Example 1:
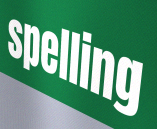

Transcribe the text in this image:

spelling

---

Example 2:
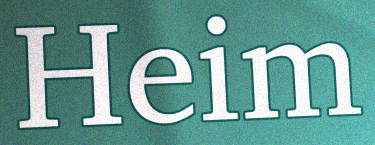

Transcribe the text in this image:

Heim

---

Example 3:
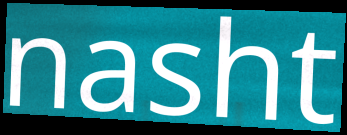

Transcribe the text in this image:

nasht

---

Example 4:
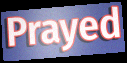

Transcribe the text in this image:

Prayed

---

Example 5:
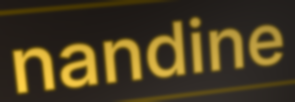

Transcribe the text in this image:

nandine